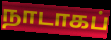
நாடாகப்